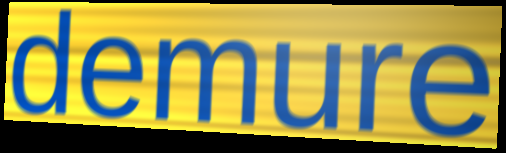
demure